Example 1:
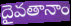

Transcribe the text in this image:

దైవతానాం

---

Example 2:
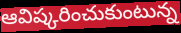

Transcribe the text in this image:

ఆవిష్కరించుకుంటున్న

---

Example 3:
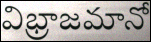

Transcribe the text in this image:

విభ్రాజమానో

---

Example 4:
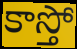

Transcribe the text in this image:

కాస్తో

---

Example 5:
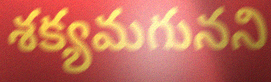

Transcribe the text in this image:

శక్యమగునని